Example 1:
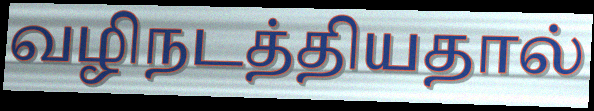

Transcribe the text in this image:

வழிநடத்தியதால்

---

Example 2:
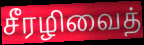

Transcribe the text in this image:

சீரழிவைத்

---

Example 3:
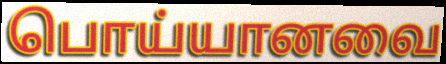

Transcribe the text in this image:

பொய்யானவை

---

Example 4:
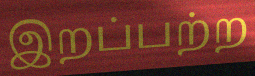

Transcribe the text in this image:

இறப்பற்ற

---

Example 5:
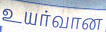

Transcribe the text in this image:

உயர்வான